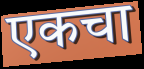
एकचा